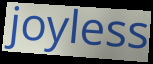
joyless